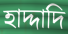
হাদ্দাদি